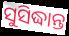
ସୁସିଦ୍ଧାନ୍ତ